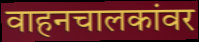
वाहनचालकांवर